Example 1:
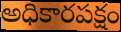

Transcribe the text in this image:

అధికారపక్షం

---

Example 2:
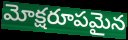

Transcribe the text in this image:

మోక్షరూపమైన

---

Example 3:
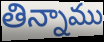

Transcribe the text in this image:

తిన్నాము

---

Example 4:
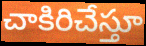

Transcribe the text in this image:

చాకిరిచేస్తూ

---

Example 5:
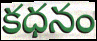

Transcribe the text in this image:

కధనం